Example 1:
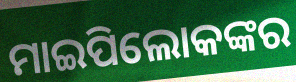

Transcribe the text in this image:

ମାଇପିଲୋକଙ୍କର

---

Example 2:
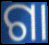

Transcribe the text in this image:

ଗା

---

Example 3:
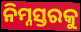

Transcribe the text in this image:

ନିମ୍ନସ୍ତରକୁ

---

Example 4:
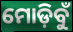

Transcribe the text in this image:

ମୋଡ଼ିବୁଁ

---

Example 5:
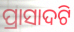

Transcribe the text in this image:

ପ୍ରାସାଦଟି